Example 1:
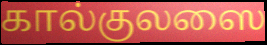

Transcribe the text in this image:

கால்குலஸை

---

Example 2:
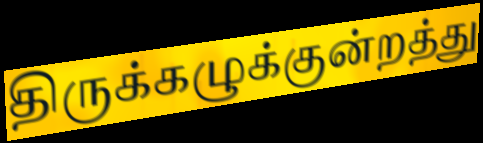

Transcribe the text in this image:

திருக்கழுக்குன்றத்து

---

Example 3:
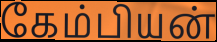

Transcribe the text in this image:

கேம்பியன்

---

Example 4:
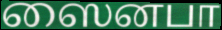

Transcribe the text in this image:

ஸைனபா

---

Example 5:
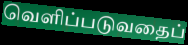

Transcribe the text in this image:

வெளிப்படுவதைப்